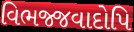
વિભજ્જવાદોપિ